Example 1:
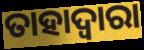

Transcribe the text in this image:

ତାହାଦ୍ଵାରା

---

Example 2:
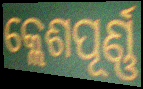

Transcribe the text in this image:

କ୍ଲେଶପୂର୍ଣ୍ଣ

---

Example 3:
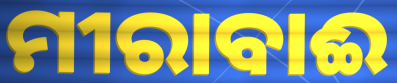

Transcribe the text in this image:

ମୀରାବାଈ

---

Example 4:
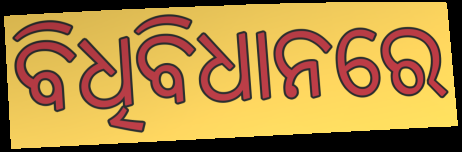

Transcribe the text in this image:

ବିଧିବିଧାନରେ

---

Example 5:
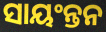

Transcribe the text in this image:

ସାୟଂନ୍ତନ